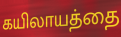
கயிலாயத்தை